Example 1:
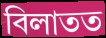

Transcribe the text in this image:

বিলাতত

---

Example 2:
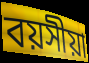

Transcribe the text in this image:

বয়সীয়া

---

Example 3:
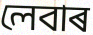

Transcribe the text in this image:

লেবাৰ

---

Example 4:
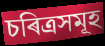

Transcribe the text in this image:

চৰিত্ৰসমূহ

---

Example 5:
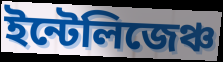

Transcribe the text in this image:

ইন্টেলিজেঞ্চ